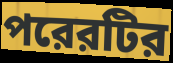
পরেরটির